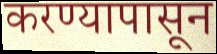
करण्यापासून